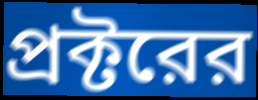
প্রক্টরের